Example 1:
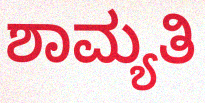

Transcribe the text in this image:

ಶಾಮ್ಯತಿ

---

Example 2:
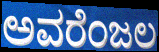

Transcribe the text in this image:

ಅವರೆಂಜಲ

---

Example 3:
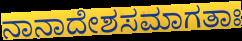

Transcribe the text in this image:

ನಾನಾದೇಶಸಮಾಗತಾಃ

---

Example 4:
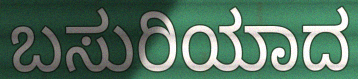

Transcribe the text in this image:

ಬಸುರಿಯಾದ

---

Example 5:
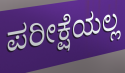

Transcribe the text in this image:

ಪರೀಕ್ಷೆಯಲ್ಲ